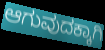
ಆಗುವುದಕ್ಕಾಗಿ